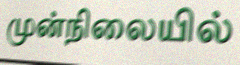
முன்நிலையில்